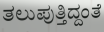
ತಲುಪುತ್ತಿದ್ದಂತೆ